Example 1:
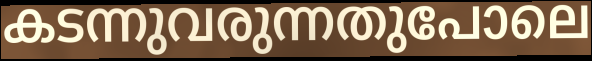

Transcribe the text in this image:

കടന്നുവരുന്നതുപോലെ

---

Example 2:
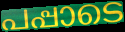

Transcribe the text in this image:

പപ്പാടെ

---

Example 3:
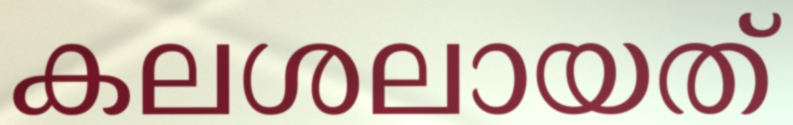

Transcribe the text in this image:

കലശലായത്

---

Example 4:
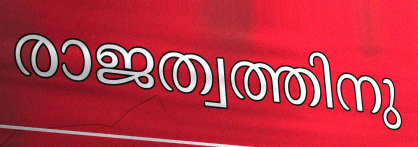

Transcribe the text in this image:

രാജത്വത്തിനു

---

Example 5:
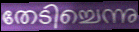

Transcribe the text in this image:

തേടിച്ചെന്നു